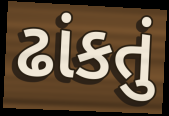
ઢાંકતું